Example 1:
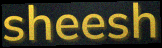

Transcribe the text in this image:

sheesh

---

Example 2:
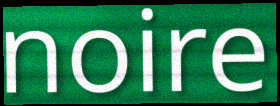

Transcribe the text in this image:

noire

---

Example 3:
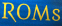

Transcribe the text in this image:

ROMs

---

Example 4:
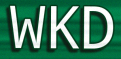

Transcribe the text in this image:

WKD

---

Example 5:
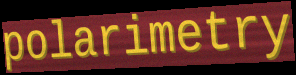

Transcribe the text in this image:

polarimetry